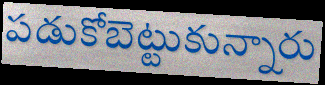
పడుకోబెట్టుకున్నారు